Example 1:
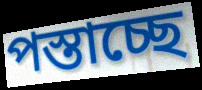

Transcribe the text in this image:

পস্তাচ্ছে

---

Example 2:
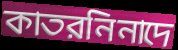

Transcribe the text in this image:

কাতরনিনাদে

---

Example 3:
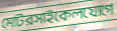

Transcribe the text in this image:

মোটরসাইকেলযোগে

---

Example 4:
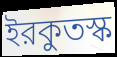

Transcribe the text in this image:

ইরকুতস্ক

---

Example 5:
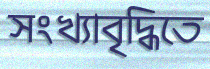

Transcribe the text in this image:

সংখ্যাবৃদ্ধিতে